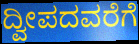
ದ್ವೀಪದವರೆಗೆ